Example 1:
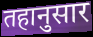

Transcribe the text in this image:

तहानुसार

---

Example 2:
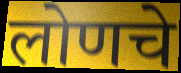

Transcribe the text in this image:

लोणचे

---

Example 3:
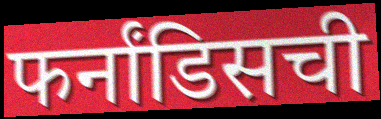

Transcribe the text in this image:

फर्नांडिसची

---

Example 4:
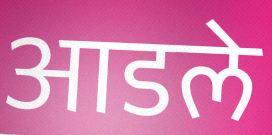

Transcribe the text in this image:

आडले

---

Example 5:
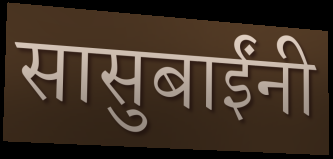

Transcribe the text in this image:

सासुबाईंनी